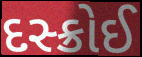
દસ્ક્રોઈ